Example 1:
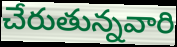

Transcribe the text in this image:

చేరుతున్నవారి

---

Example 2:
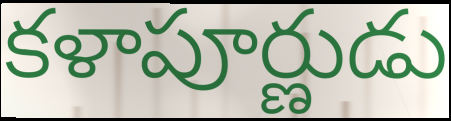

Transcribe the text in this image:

కళాపూర్ణుడు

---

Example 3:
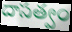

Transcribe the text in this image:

దాసత్వం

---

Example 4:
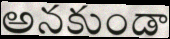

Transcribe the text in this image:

అనకుండా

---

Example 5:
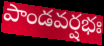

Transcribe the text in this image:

పాండవర్షభః